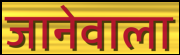
जानेवाला